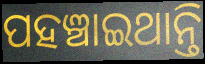
ପହଞ୍ଚାଇଥାନ୍ତି